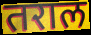
तराल